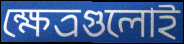
ক্ষেত্রগুলোই